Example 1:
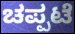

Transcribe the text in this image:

ಚಪ್ಪಟೆ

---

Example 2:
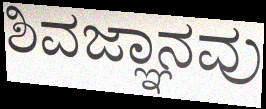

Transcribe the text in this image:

ಶಿವಜ್ಞಾನವು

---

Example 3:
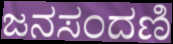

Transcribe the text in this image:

ಜನಸಂದಣಿ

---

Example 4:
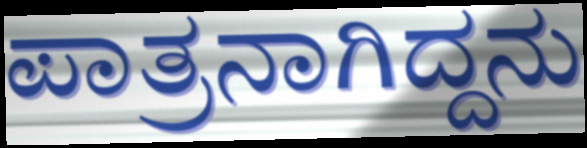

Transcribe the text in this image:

ಪಾತ್ರನಾಗಿದ್ದನು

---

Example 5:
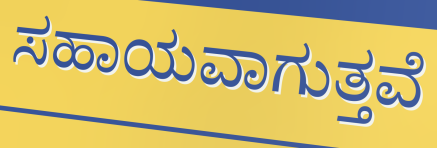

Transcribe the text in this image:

ಸಹಾಯವಾಗುತ್ತವೆ